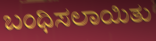
ಬಂಧಿಸಲಾಯಿತು